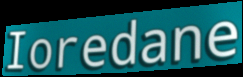
Ioredane